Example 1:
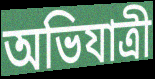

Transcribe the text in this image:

অভিযাত্রী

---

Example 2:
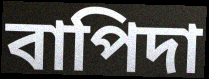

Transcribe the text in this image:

বাপিদা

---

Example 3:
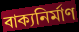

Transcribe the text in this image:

বাক্যনির্মাণ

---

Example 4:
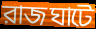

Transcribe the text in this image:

রাজঘাটে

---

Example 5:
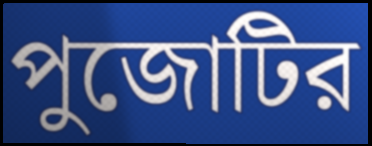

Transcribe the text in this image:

পুজোটির